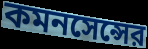
কমনসেন্সের